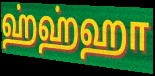
ஹ்ஹ்ஹா